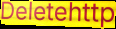
Deletehttp